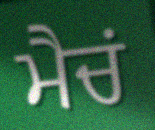
ਮੈਚਂ